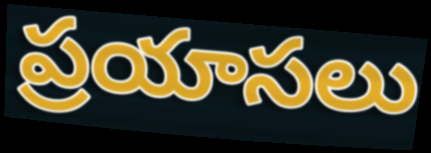
ప్రయాసలు